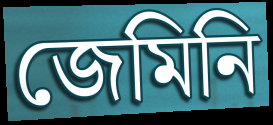
জেমিনি